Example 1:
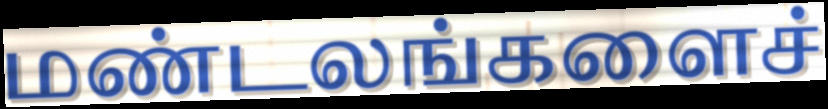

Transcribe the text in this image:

மண்டலங்களைச்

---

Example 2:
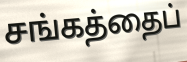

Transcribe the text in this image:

சங்கத்தைப்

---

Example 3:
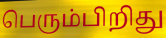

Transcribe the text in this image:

பெரும்பிறிது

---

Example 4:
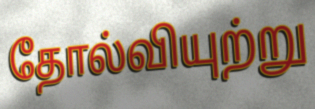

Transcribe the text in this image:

தோல்வியுற்று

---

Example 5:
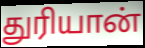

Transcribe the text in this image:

துரியான்